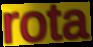
rota